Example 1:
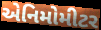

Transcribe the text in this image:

એનિમોમીટર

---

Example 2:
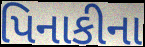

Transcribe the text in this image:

પિનાકીના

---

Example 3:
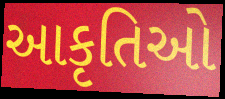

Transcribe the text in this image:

આકૃતિઓ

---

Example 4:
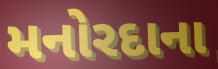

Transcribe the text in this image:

મનોરદાના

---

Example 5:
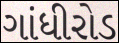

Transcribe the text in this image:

ગાંધીરોડ